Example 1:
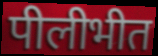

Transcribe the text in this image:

पीलीभीत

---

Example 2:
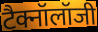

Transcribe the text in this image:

टैक्नॉलॉजी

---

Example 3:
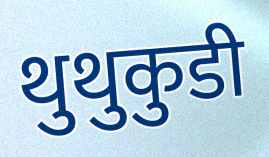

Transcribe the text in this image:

थुथुकुडी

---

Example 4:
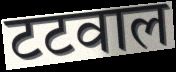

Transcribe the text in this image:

टटवाल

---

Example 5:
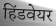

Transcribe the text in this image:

हिंडवेयर